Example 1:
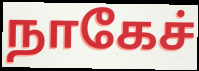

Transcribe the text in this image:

நாகேச்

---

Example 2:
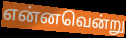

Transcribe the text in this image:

என்னவென்று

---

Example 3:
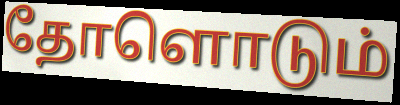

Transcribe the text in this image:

தோளொடும்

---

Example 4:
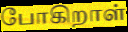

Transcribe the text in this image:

போகிறாள்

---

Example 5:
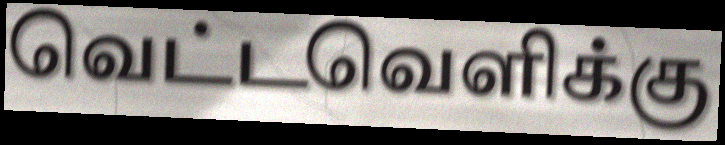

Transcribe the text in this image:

வெட்டவெளிக்கு